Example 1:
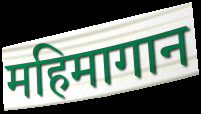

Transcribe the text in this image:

महिमागान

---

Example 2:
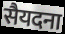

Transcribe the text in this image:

सैयदना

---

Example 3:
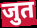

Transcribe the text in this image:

जुत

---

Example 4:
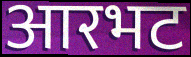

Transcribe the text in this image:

आरभट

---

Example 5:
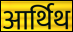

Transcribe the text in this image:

आर्थिथ